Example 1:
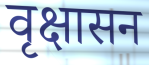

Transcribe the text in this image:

वृक्षासन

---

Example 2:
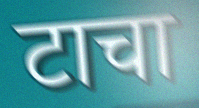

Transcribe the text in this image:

टाचा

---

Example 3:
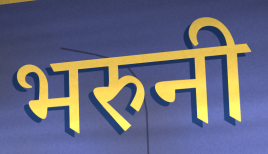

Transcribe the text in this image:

भरुनी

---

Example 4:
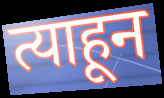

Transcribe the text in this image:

त्याहून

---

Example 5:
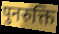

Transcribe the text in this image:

पुनरुक्ति